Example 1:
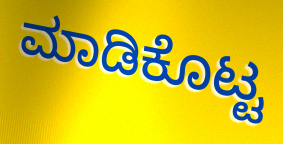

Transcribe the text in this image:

ಮಾಡಿಕೊಟ್ಟ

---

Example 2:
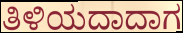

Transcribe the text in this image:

ತಿಳಿಯದಾದಾಗ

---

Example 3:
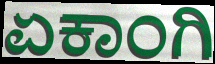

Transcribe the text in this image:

ಏಕಾಂಗಿ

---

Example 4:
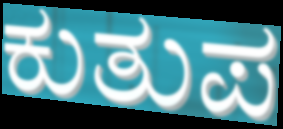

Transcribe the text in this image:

ಕುತುಪ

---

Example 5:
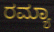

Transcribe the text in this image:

ರಮ್ಯಾ